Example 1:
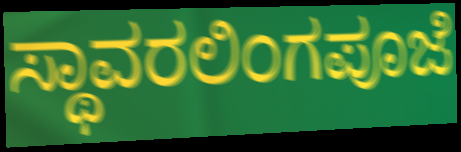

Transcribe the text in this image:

ಸ್ಥಾವರಲಿಂಗಪೂಜೆ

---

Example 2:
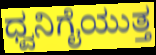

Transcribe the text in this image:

ಧ್ವನಿಗೈಯುತ್ತ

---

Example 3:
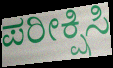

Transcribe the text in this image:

ಪರೀಕ್ಷಿಸಿ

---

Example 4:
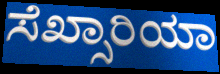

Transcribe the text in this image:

ಸೆಖ್ಸಾರಿಯಾ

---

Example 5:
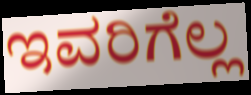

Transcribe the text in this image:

ಇವರಿಗೆಲ್ಲ